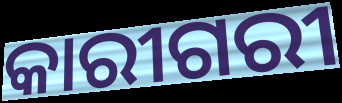
କାରୀଗରୀ